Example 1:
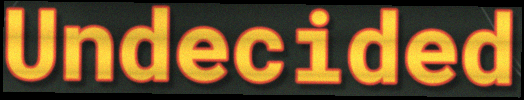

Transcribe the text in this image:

Undecided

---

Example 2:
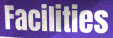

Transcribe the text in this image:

Facilities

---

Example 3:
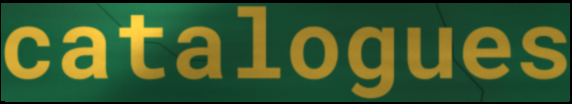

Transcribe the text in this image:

catalogues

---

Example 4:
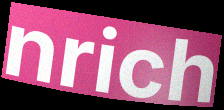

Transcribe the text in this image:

nrich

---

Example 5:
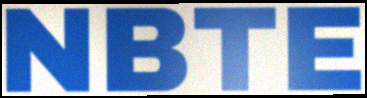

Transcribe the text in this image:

NBTE